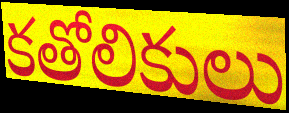
కతోలికులు